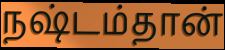
நஷ்டம்தான்